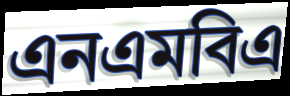
এনএমবিএ